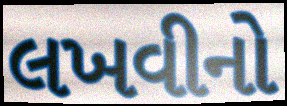
લખવીનો